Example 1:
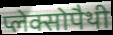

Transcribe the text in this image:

प्लेक्सोपैथी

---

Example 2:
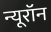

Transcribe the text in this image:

न्यूरॉन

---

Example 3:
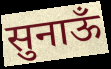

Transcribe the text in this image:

सुनाऊँ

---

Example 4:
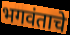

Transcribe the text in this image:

भगवंताचे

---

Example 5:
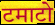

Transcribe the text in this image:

टमाटो